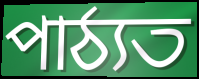
পাঠ্যত